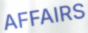
AFFAIRS